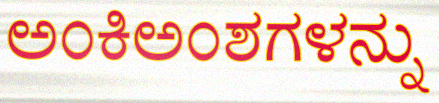
ಅಂಕಿಅಂಶಗಳನ್ನು